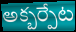
అక్బర్పేట